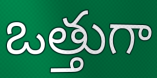
ఒత్తుగా